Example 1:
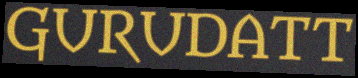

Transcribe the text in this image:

GURUDATT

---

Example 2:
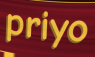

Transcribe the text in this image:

priyo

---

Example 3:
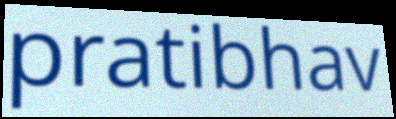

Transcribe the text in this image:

pratibhav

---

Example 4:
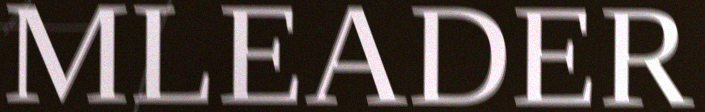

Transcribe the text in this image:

MLEADER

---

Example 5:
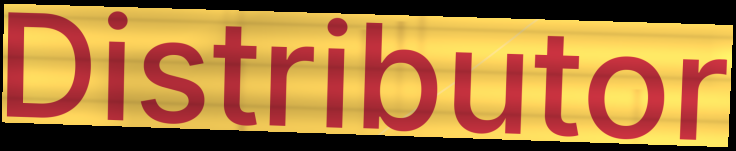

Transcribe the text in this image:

Distributor